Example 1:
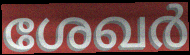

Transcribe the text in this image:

ശേഖർ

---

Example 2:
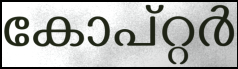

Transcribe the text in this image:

കോപ്റ്റർ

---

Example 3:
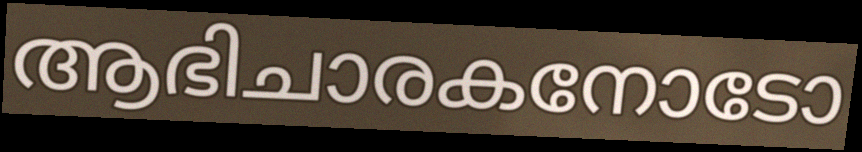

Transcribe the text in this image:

ആഭിചാരകനോടോ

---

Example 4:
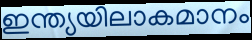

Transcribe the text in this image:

ഇന്ത്യയിലാകമാനം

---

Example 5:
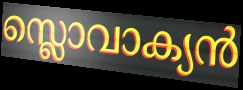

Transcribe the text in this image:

സ്ലൊവാക്യൻ